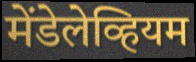
मेंडेलेव्हियम